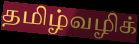
தமிழ்வழிக்